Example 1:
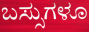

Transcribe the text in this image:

ಬಸ್ಸುಗಳೂ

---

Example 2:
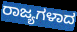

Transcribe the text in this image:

ರಾಜ್ಯಗಳಾದ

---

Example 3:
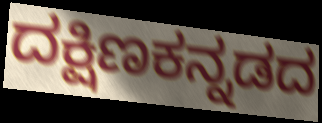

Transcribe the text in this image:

ದಕ್ಷಿಣಕನ್ನಡದ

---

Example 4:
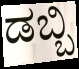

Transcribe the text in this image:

ಡಬ್ಬಿ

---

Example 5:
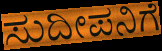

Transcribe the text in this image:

ಸುದೀಪನಿಗೆ